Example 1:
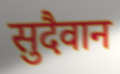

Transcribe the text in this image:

सुदैवान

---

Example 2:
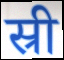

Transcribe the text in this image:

स्री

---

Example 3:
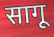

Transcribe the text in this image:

सागू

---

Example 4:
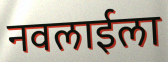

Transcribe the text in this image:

नवलाईला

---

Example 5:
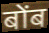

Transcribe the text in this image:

बोंब